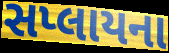
સપ્લાયના